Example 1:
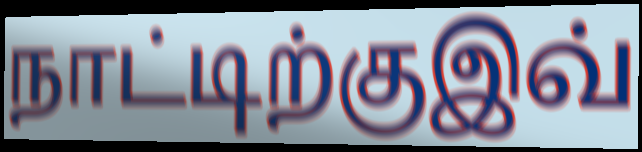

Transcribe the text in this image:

நாட்டிற்குஇவ்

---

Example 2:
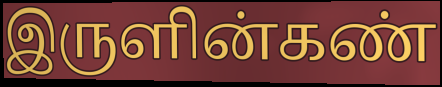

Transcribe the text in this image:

இருளின்கண்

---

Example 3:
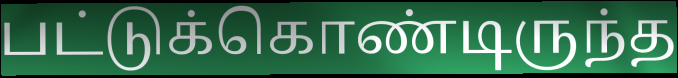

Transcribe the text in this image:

பட்டுக்கொண்டிருந்த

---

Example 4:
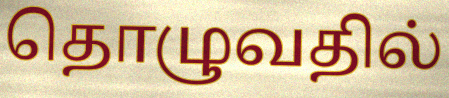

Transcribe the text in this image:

தொழுவதில்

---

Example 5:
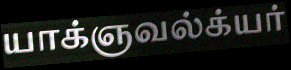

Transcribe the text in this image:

யாக்ஞவல்க்யர்